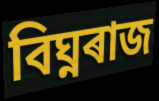
বিঘ্নৰাজ